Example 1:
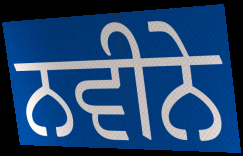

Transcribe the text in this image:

ਨਵੀਨੇ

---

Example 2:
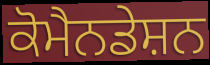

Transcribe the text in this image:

ਕੋਮੈਨਡੇਸ਼ਨ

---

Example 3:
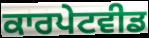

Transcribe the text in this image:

ਕਾਰਪੇਟਵੀਡ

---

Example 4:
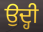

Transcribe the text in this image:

ਉਦ੍ਹੀ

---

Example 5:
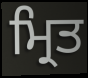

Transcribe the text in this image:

ਮ੍ਰਿਤ